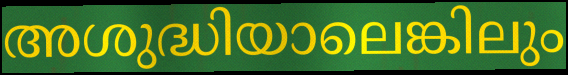
അശുദ്ധിയാലെങ്കിലും